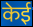
केई